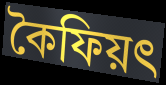
কৈফিয়ৎ